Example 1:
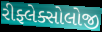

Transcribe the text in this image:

રીફ્લેક્સોલોજી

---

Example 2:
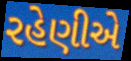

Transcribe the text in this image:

રહેણીએ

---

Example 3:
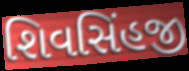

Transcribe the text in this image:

શિવસિંહજી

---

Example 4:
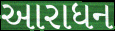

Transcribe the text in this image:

આરાધન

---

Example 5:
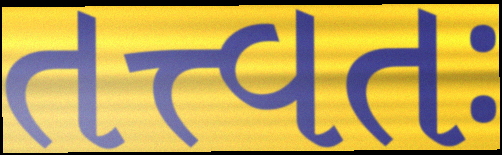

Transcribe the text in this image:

તત્ત્વતઃ